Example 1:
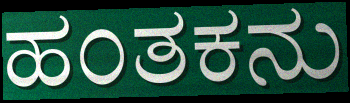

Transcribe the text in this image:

ಹಂತಕನು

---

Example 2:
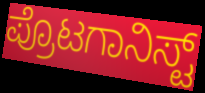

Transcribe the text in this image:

ಪ್ರೊಟಗಾನಿಸ್ಟ್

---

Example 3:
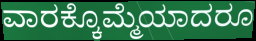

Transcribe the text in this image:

ವಾರಕ್ಕೊಮ್ಮೆಯಾದರೂ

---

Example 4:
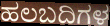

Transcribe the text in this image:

ಹಲಬದಿಗಳ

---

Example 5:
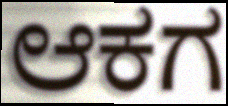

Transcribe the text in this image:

ಆಕಗ